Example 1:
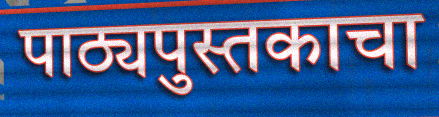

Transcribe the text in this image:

पाठ्यपुस्तकाचा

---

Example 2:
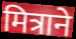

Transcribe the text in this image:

मित्राने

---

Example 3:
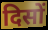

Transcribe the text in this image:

दिसों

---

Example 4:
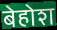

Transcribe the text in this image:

बेहोश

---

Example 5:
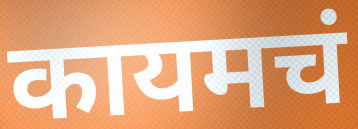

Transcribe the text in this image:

कायमचं